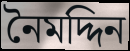
নৈমদ্দিন